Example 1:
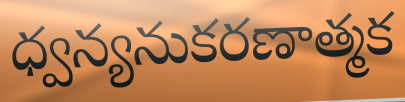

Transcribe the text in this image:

ధ్వన్యనుకరణాత్మక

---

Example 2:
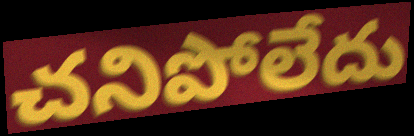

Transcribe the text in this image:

చనిపోలేదు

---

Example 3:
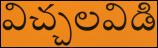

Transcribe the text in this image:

విచ్చలవిడి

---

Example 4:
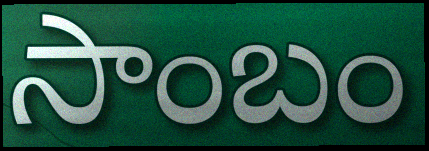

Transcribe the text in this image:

సాంబం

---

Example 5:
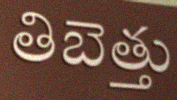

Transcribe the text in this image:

తిబెత్తు